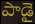
పాడై